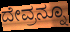
ದೇವ್ರನ್ನೂ